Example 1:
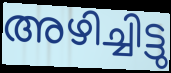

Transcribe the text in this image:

അഴിച്ചിട്ടു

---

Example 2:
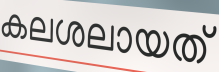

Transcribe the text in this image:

കലശലായത്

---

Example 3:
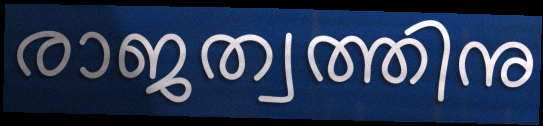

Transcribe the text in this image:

രാജത്വത്തിനു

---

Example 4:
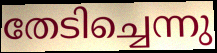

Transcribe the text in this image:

തേടിച്ചെന്നു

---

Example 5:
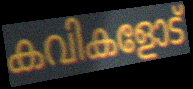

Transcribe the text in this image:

കവികളോട്